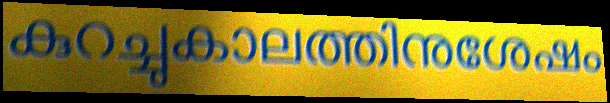
കുറച്ചുകാലത്തിനുശേഷം